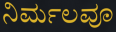
ನಿರ್ಮಲವೂ